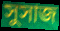
সুসাজ